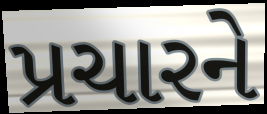
પ્રચારને